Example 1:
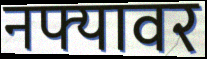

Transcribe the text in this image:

नफ्यावर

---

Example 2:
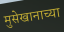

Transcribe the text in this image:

मुसेखानाच्या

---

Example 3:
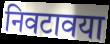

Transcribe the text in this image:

निवटावया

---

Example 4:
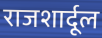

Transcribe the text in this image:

राजशार्दूल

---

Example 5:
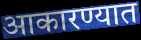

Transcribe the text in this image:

आकारण्यात